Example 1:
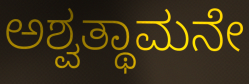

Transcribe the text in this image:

ಅಶ್ವತ್ಥಾಮನೇ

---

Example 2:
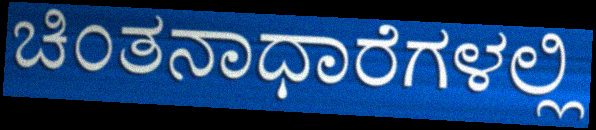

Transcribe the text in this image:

ಚಿಂತನಾಧಾರೆಗಳಲ್ಲಿ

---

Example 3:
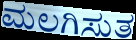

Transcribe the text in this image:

ಮಲಗಿಸುತ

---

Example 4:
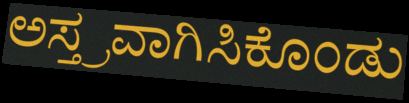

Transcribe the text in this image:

ಅಸ್ತ್ರವಾಗಿಸಿಕೊಂಡು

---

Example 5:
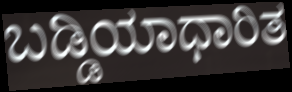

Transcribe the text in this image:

ಬಡ್ಡಿಯಾಧಾರಿತ